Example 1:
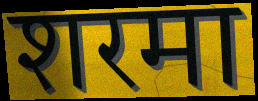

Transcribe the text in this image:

शरमा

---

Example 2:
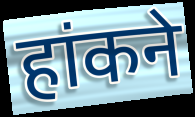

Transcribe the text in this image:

हांकने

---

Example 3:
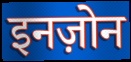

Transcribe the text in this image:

इनज़ोन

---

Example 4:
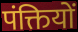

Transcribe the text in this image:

पंक्तियों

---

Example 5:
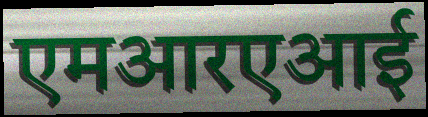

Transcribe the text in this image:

एमआरएआई